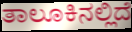
ತಾಲೂಕಿನಲ್ಲಿದೆ